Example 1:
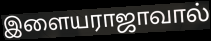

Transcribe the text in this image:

இளையராஜாவால்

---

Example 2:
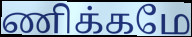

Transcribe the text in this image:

ணிக்கமே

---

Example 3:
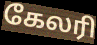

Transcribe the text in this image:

கேலரி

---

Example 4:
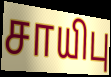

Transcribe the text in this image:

சாயிபு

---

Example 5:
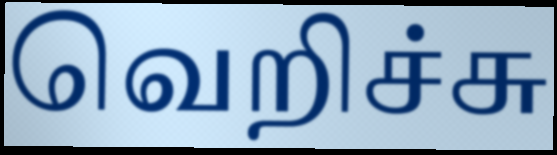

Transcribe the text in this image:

வெறிச்சு